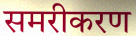
समरीकरण